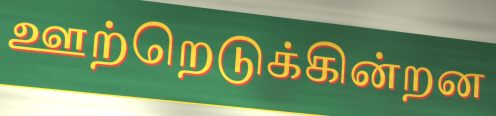
ஊற்றெடுக்கின்றன